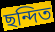
ছন্দিত